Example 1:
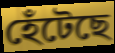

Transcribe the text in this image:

হেঁটেছে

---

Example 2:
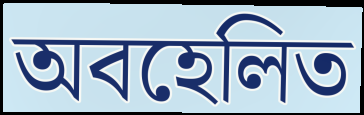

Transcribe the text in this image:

অবহেলিত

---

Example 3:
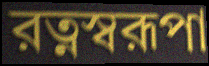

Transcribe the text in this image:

রত্নস্বরূপা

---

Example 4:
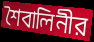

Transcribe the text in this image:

শৈবালিনীর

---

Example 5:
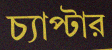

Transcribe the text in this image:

চ্যাপ্টার